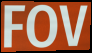
FOV